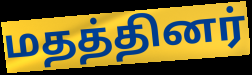
மதத்தினர்